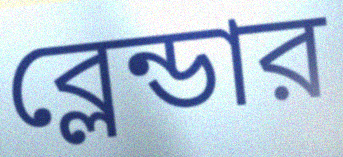
ব্লেন্ডার